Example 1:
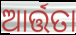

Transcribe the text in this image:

ଆର୍ତ୍ତତା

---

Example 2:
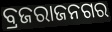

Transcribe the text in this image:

ବ୍ରଜରାଜନଗର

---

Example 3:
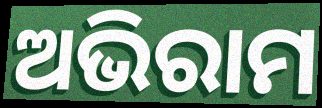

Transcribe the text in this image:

ଅଭିରାମ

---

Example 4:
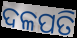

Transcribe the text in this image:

ଦଳପତି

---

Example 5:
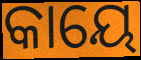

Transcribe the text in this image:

କାୟେ